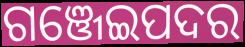
ଗଞ୍ଜେଇପଦର